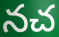
నచ